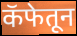
कॅफेतून